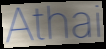
Athai